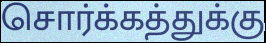
சொர்க்கத்துக்கு